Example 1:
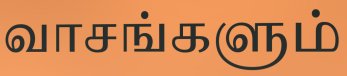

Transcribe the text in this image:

வாசங்களும்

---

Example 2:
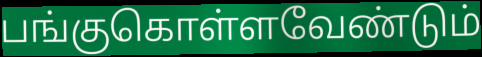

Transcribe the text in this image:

பங்குகொள்ளவேண்டும்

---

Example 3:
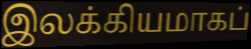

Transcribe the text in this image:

இலக்கியமாகப்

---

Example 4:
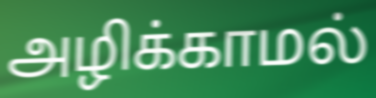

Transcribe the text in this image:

அழிக்காமல்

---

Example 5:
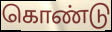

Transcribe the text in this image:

கொண்டு